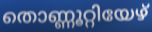
തൊണ്ണൂറ്റിയേഴ്